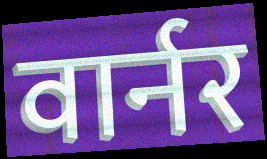
वार्नर